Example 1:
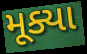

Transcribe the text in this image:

મૂક્યા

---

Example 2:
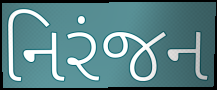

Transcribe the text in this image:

નિરંજન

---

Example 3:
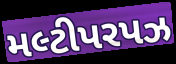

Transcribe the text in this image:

મલ્ટીપરપઝ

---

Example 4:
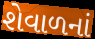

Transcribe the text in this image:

શેવાળનાં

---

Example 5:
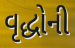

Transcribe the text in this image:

વૃદ્ધોની